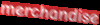
merchandise